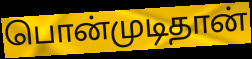
பொன்முடிதான்